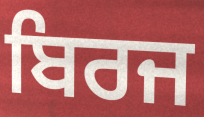
ਬਿਰਜ